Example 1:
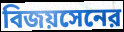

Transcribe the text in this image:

বিজয়সেনের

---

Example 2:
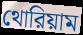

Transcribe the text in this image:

থোরিয়াম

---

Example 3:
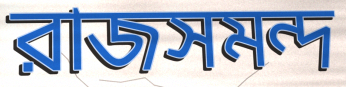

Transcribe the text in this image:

রাজসমন্দ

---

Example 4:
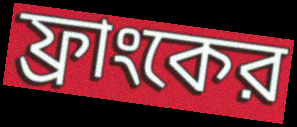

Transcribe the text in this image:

ফ্রাংকের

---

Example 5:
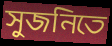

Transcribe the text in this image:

সুজনিতে